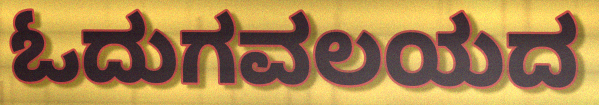
ಓದುಗವಲಯದ